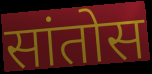
सांतोस